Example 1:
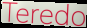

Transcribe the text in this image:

Teredo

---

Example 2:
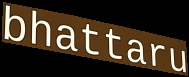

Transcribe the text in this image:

bhattaru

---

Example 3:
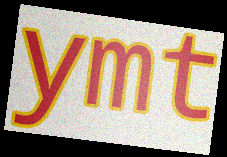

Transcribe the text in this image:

ymt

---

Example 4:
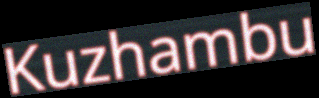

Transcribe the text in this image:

Kuzhambu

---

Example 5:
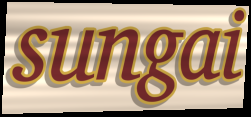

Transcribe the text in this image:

sungai